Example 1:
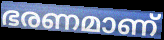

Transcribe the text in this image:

ഭരണമാണ്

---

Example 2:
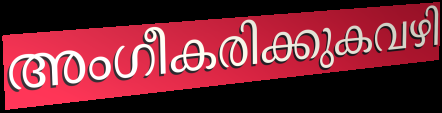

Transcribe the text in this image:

അംഗീകരിക്കുകവഴി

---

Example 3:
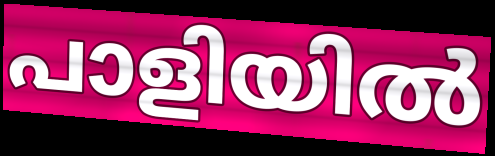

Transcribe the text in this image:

പാളിയിൽ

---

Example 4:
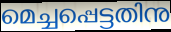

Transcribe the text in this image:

മെച്ചപ്പെട്ടതിനു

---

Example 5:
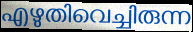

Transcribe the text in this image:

എഴുതിവെച്ചിരുന്ന